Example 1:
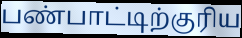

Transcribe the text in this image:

பண்பாட்டிற்குரிய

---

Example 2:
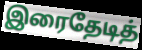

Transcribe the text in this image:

இரைதேடித்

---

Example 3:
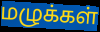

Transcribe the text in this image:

மழுக்கள்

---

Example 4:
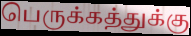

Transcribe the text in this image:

பெருக்கத்துக்கு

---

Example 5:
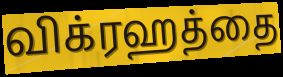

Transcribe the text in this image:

விக்ரஹத்தை